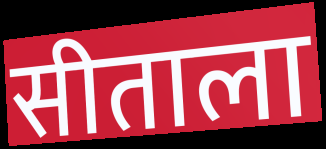
सीताला